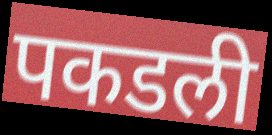
पकडली